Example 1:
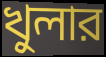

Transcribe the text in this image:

খুলার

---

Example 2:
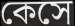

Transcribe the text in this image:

কেসে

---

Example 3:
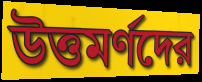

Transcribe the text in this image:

উত্তমর্ণদের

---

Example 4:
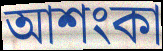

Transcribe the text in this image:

আশংকা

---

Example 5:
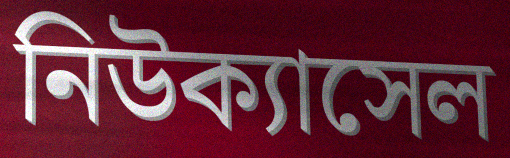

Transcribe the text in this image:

নিউক্যাসেল